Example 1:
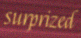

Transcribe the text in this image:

surprized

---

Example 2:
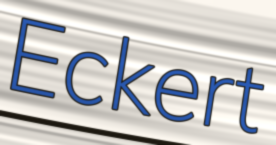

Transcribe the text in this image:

Eckert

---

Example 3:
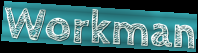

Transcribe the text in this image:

Workman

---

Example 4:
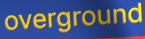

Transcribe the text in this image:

overground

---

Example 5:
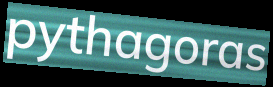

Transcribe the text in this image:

pythagoras